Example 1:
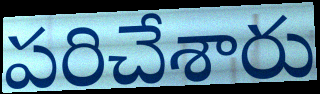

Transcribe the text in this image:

పరిచేశారు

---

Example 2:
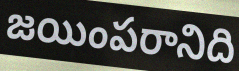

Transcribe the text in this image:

జయింపరానిది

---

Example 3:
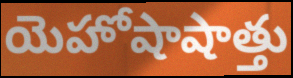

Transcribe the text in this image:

యెహోషాషాత్తు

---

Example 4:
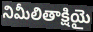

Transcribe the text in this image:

నిమీలితాక్షియై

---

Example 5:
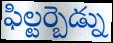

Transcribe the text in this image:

ఫిల్టర్బెడ్ను